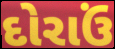
દોરાઉં